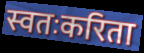
स्वतःकरिता